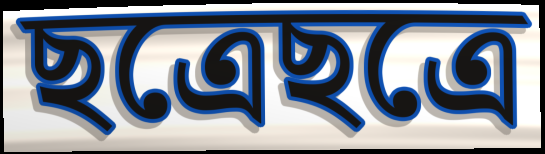
ছত্রেছত্রে